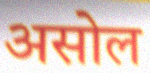
असोल